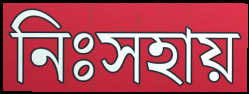
নিঃসহায়